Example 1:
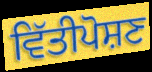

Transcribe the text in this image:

ਵਿੱਤੀਪੋਸ਼ਣ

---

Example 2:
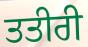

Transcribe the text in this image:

ਤਤੀਰੀ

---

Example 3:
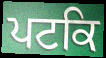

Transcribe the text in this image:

ਪਟਕਿ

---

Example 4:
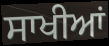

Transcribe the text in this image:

ਸਾਖੀਆਂ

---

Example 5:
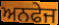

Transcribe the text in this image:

ਅਨਫੇਜ